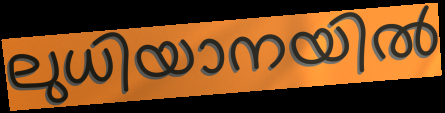
ലുധിയാനയിൽ